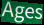
Ages